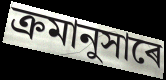
ক্ৰমানুসাৰে